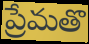
ప్రేమతొ